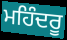
ਮਹਿੰਦਰੂ